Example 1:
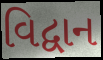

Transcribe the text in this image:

વિદ્વાન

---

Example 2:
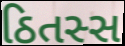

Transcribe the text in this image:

ઠિતસ્સ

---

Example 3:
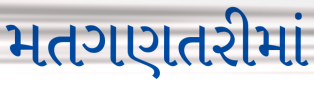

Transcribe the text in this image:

મતગણતરીમાં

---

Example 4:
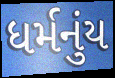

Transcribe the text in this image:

ધર્મનુંય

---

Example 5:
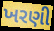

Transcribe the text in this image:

ખરણી